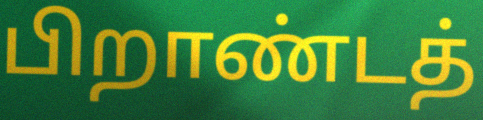
பிறாண்டத்